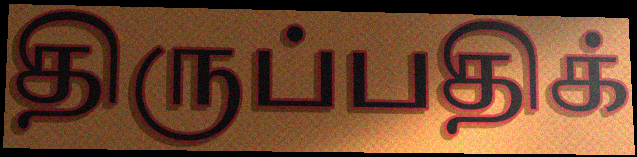
திருப்பதிக்